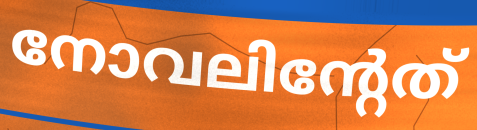
നോവലിന്റേത്